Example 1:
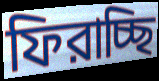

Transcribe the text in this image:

ফিরাচ্ছি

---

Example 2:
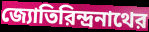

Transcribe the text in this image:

জ্যোতিরিন্দ্রনাথের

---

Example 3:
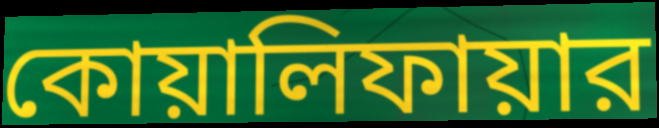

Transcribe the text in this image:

কোয়ালিফায়ার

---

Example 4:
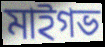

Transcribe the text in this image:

মাইগভ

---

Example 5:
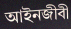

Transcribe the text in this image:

আইনজীবী